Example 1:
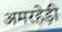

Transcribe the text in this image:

अमरहेड़ी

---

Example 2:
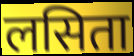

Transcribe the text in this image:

लसिता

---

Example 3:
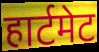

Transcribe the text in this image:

हार्टमेट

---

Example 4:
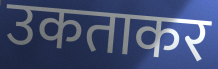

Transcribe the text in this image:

उकताकर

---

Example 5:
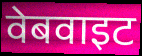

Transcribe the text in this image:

वेबवाइट